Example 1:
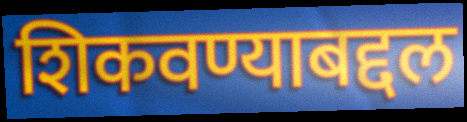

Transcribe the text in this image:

शिकवण्याबद्दल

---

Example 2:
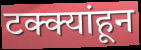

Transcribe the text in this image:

टक्क्यांहून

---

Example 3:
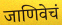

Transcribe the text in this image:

जाणिवेचं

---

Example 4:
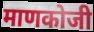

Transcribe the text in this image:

माणकोजी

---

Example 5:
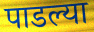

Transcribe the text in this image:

पाडल्या